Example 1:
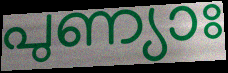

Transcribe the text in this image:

പുണ്യാഃ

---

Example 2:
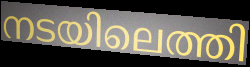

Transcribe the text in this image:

നടയിലെത്തി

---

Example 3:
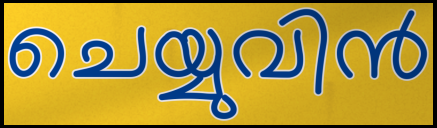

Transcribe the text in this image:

ചെയ്യുവിൻ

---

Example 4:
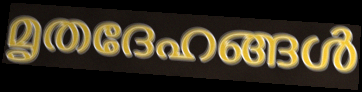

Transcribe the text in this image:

മൃതദേഹങ്ങൾ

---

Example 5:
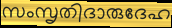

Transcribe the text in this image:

സംസൃതിദാരുദേഹ